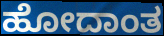
ಹೋದಾಂತ